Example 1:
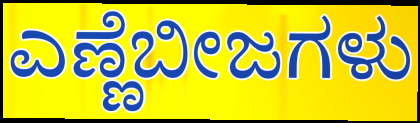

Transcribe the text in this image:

ಎಣ್ಣೆಬೀಜಗಳು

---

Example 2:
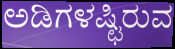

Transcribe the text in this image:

ಅಡಿಗಳಷ್ಟಿರುವ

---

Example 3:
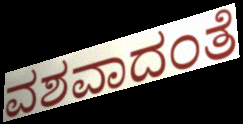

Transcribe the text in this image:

ವಶವಾದಂತೆ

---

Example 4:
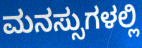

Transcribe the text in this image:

ಮನಸ್ಸುಗಳಲ್ಲಿ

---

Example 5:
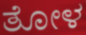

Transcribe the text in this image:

ತೋಳ